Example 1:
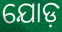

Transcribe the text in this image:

ଯୋଡ଼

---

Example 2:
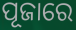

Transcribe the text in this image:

ପୂଜାରେ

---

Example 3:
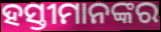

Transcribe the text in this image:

ହସ୍ତୀମାନଙ୍କର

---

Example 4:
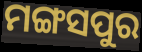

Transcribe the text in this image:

ମଙ୍ଗସପୁର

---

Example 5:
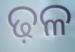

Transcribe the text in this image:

ଢ଼ଳ